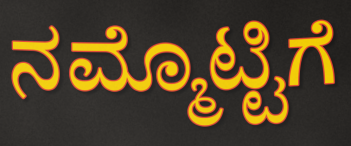
ನಮ್ಮೊಟ್ಟಿಗೆ